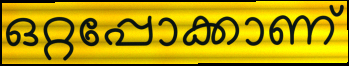
ഒറ്റപ്പോക്കാണ്